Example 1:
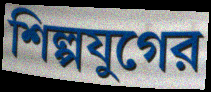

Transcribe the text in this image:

শিল্পযুগের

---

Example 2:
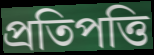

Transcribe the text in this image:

প্রতিপত্তি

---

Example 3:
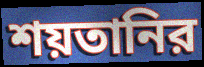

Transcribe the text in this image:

শয়তানির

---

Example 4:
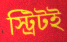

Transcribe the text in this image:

স্ট্রিটই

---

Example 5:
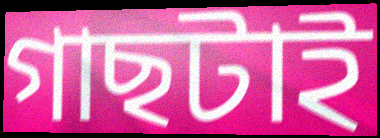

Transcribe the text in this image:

গাছটাই